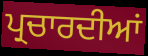
ਪ੍ਰਚਾਰਦੀਆਂ